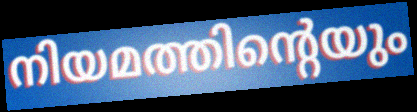
നിയമത്തിന്റെയും